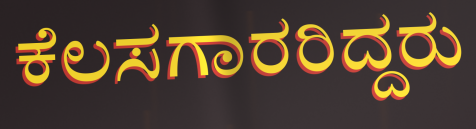
ಕೆಲಸಗಾರರಿದ್ದರು